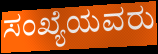
ಸಂಖ್ಯೆಯವರು